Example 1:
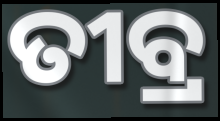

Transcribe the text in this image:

ତୀବ୍ର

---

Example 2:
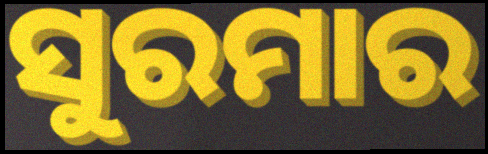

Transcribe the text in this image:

ସୁରମାର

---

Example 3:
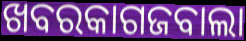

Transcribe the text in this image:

ଖବରକାଗଜବାଲା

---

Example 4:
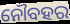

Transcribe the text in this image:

ନୌବହର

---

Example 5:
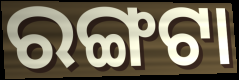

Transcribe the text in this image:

ରଙ୍ଗଟା